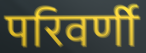
परिवर्णी